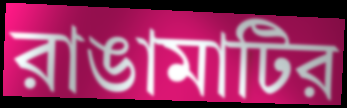
রাঙামাটির